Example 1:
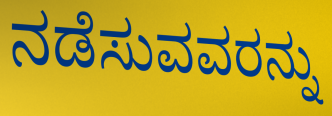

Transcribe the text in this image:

ನಡೆಸುವವರನ್ನು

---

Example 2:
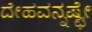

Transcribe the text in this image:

ದೇಹವನ್ನಷ್ಟೇ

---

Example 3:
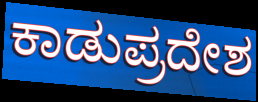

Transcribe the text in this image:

ಕಾಡುಪ್ರದೇಶ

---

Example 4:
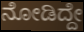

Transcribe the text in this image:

ನೋಡಿದ್ದೇ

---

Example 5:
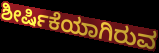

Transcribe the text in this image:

ಶೀರ್ಷಿಕೆಯಾಗಿರುವ